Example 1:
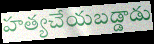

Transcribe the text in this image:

హత్యచేయబడ్డాడు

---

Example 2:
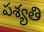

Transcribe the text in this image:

పశ్యతి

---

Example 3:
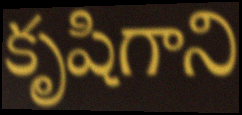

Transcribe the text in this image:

కృషిగాని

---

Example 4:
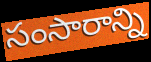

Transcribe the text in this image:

సంసారాన్ని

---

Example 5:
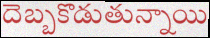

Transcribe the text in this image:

దెబ్బకొడుతున్నాయి